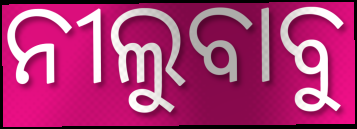
ନୀଲୁବାବୁ